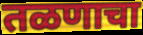
तळणाचा